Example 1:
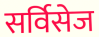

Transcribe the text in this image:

सर्विसेज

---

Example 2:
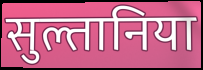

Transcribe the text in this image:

सुल्तानिया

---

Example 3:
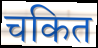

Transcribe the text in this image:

चकित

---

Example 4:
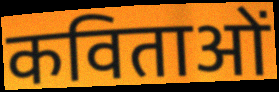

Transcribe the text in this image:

कविताओं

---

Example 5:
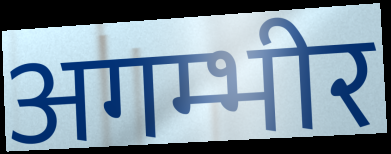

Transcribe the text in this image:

अगम्भीर